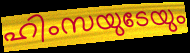
ഹിംസയുടേയും